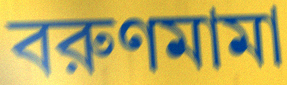
বরুণমামা